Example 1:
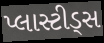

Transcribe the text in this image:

પ્લાસ્ટીડ્સ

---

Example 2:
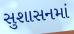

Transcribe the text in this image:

સુશાસનમાં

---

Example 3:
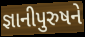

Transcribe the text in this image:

જ્ઞાનીપુરુષને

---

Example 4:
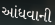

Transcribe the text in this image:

આંધવાની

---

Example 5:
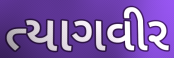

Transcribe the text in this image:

ત્યાગવીર